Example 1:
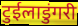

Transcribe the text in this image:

टुईलाडुंगरी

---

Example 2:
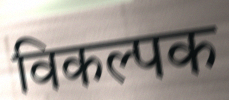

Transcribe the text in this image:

विकल्पक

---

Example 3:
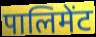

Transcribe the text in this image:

पालिमेंट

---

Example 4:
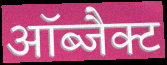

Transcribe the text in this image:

ऑब्जैक्ट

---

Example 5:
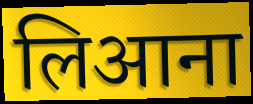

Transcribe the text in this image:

लिआना